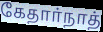
கேதார்நாத்